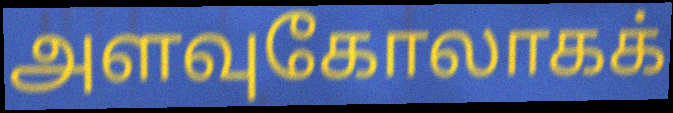
அளவுகோலாகக்